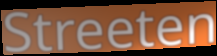
Streeten